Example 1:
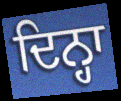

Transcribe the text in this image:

ਦਿਨ੍ਹਾ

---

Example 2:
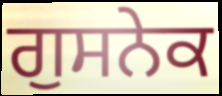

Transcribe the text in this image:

ਗੁਸਨੇਕ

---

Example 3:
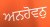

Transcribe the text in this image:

ਅਨਹੋਵਨੁ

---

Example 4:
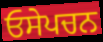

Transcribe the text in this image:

ਓਸੇਪਚਨ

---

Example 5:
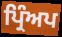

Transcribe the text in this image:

ਪ੍ਰਿੰਅਪ